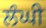
ਲੰਘੀ